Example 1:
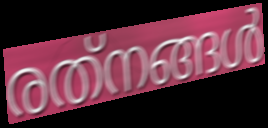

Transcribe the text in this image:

രത്‌നങ്ങൾ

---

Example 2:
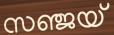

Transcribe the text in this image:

സഞ്ജയ്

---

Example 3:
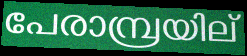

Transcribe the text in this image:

പേരാമ്പ്രയില്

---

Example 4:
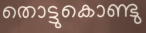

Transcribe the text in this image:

തൊട്ടുകൊണ്ടു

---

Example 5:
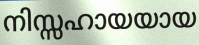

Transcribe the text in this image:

നിസ്സഹായയായ